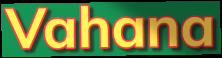
Vahana